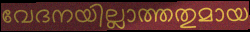
വേദനയില്ലാത്തതുമായ